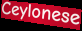
Ceylonese